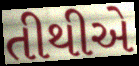
તીથીએ